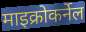
माइक्रोकर्नेल